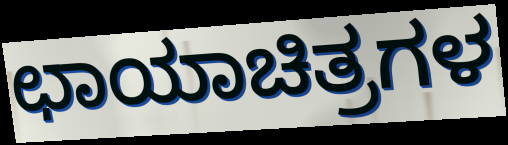
ಛಾಯಾಚಿತ್ರಗಳ